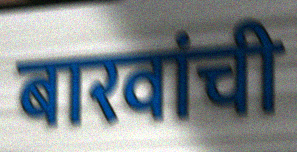
बारवांची